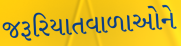
જરૂરિયાતવાળાઓને